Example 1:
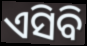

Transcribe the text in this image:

ଏସିବି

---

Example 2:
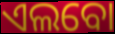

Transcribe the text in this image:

ଏଲବୋ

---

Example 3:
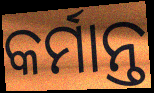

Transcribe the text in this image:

କର୍ମାନ୍ତ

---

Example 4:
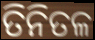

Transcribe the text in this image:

ତିନିତଳ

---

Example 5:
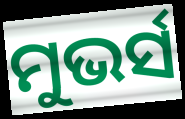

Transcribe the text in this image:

ମୁଭର୍ସ